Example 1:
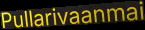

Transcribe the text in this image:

Pullarivaanmai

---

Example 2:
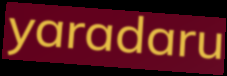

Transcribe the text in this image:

yaradaru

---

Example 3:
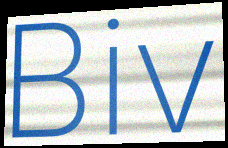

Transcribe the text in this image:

Biv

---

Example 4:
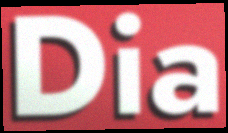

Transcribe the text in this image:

Dia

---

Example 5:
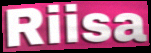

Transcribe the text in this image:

Riisa